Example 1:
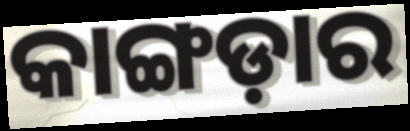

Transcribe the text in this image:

କାଙ୍ଗଡ଼ାର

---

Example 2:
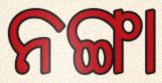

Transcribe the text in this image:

ନଙ୍ଗା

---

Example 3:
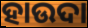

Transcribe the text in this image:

ହାଉଦା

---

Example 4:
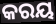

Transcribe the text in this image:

କରୟ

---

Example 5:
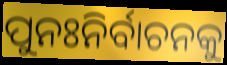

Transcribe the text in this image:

ପୁନଃନିର୍ବାଚନକୁ